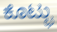
ಕೊಟ್ಟು